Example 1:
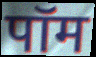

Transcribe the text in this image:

पॉम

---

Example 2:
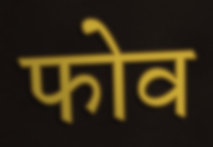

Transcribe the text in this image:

फोव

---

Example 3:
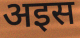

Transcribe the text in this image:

अइस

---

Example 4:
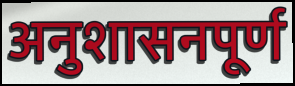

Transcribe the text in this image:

अनुशासनपूर्ण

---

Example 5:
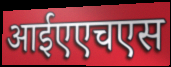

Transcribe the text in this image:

आईएएचएस